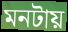
মনটায়